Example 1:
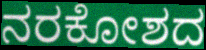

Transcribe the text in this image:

ನರಕೋಶದ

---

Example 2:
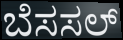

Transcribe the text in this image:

ಬೆಸಸಲ್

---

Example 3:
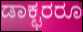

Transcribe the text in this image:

ಡಾಕ್ಟರರೂ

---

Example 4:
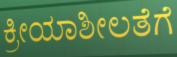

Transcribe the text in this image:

ಕ್ರೀಯಾಶೀಲತೆಗೆ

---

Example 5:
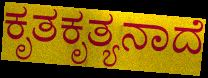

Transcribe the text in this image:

ಕೃತಕೃತ್ಯನಾದೆ